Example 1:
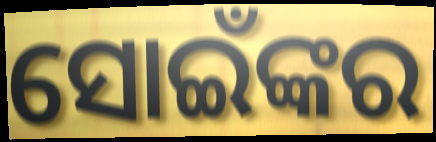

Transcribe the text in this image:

ସୋଇଁଙ୍କର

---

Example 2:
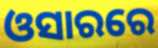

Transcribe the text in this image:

ଓସାରରେ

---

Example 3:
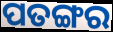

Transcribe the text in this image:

ପତଙ୍ଗର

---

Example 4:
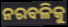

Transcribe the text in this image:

ନରବଳିକୁ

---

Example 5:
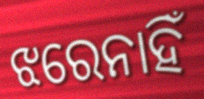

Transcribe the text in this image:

ଝରେନାହିଁ